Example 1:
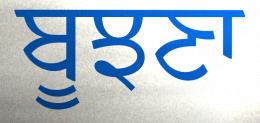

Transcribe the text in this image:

ਬੂਝਣਾ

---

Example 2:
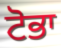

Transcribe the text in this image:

ਟੋਭਾ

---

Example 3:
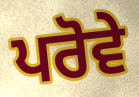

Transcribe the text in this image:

ਪਰੋਵੇ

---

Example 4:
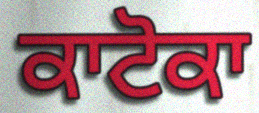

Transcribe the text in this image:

ਕਾਟੋਕਾ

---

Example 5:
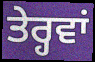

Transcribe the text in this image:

ਤੇਰ੍ਹਵਾਂ